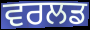
ਵਰਲਡ